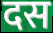
दस